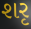
શરૃ